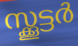
സ്ക്കൂട്ടർ